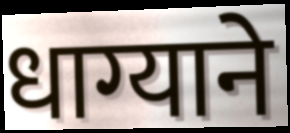
धाग्याने